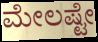
ಮೇಲಷ್ಟೇ